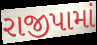
રાજીપામાં